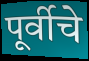
पूर्वीचे